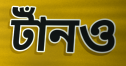
টাঁনও